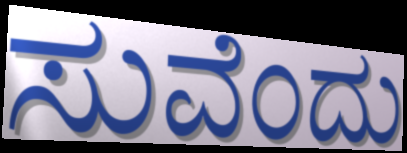
ಸುವೆಂದು